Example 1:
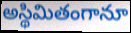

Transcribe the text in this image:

అస్థిమితంగానూ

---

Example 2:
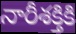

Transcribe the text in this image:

నారీశక్తికి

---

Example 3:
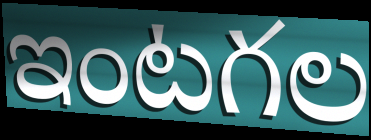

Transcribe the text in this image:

ఇంటగల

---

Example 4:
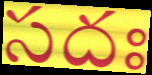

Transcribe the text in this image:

సదః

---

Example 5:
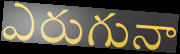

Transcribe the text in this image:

ఎరుగునా